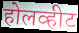
होलव्हीट